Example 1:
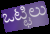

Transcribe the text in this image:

ಒಟ್ಟಿಲು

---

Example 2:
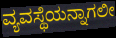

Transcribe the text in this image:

ವ್ಯವಸ್ಥೆಯನ್ನಾಗಲೀ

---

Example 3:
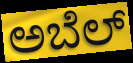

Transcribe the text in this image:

ಅಬೆಲ್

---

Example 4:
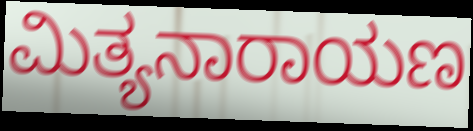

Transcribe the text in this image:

ಮಿತ್ಯನಾರಾಯಣ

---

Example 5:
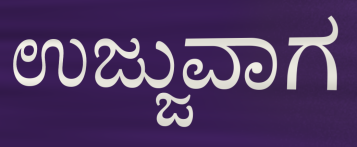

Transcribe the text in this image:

ಉಜ್ಜುವಾಗ